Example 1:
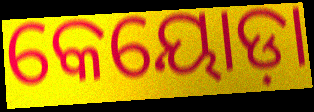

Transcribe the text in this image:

କେୟୋଡ଼ା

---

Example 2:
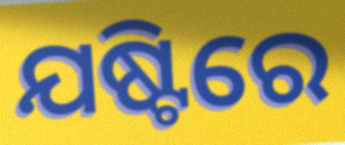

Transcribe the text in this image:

ଯଷ୍ଟିରେ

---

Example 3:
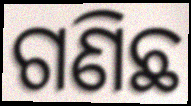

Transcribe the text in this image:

ଗଣିଛ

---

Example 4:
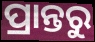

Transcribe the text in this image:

ପ୍ରାନ୍ତରୁ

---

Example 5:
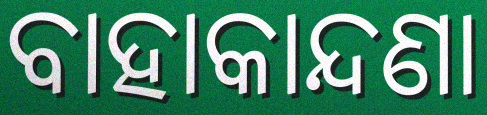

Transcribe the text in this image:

ବାହାକାନ୍ଦଣା